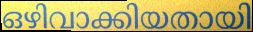
ഒഴിവാക്കിയതായി